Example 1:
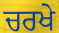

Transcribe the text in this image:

ਚਰਖੇ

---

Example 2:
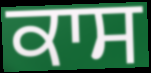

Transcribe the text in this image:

ਕਾਸ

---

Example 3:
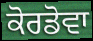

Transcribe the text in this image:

ਕੋਰਡੋਵਾ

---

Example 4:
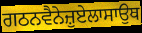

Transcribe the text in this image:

ਗਠਨਵੈਨੇਜ਼ੁਏਲਾਸਾਉਥ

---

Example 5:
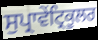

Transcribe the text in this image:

ਸੁਪ੍ਰਾਵੇਂਟ੍ਰਿਕੂਲਰ